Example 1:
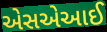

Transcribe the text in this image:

એસએઆઈ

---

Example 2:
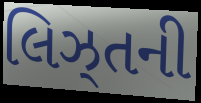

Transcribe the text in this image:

લિઝ્તની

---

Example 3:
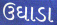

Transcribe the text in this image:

ઉઘાડા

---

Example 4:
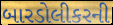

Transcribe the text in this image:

બારડોલીકરની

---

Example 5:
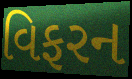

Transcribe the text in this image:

વિફરન